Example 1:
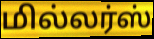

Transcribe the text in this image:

மில்லர்ஸ்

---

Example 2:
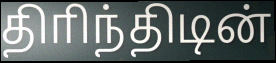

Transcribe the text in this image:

திரிந்திடின்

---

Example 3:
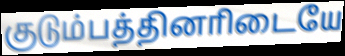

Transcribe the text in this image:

குடும்பத்தினரிடையே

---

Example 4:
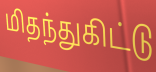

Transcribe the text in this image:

மிதந்துகிட்டு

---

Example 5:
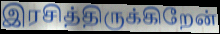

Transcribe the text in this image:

இரசித்திருக்கிறேன்